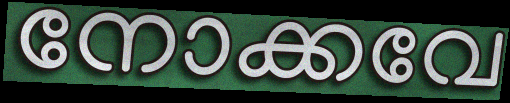
നോക്കവേ